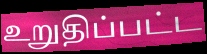
உறுதிப்பட்ட